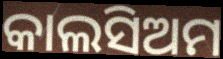
କାଲସିଅମ